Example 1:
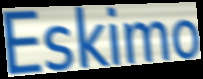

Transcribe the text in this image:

Eskimo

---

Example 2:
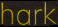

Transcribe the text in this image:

hark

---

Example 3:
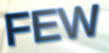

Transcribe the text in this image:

FEW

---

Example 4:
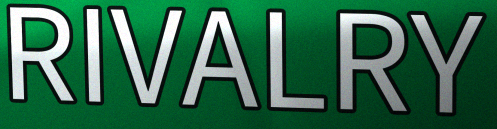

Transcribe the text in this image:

RIVALRY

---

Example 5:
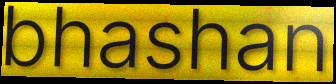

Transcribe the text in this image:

bhashan